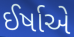
ઈર્ષાએ